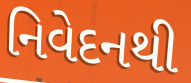
નિવેદનથી